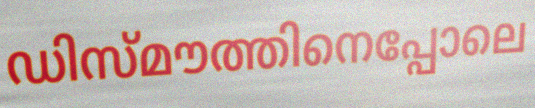
ഡിസ്മൗത്തിനെപ്പോലെ